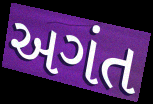
અગંત